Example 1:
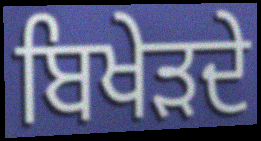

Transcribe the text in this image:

ਬਿਖੇੜਦੇ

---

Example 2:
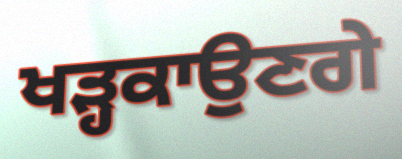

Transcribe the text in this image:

ਖੜ੍ਹਕਾਉਣਗੇ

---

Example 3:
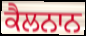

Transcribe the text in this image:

ਕੈਲਨਾਨ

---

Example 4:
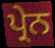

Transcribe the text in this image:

ਪ੍ਰੇਨ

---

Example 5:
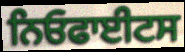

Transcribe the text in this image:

ਨਿਓਫਾਈਟਸ